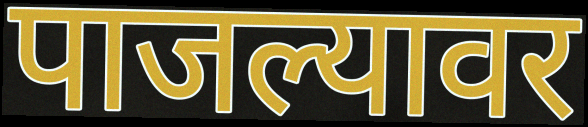
पाजल्यावर